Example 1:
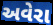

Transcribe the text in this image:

અવેરા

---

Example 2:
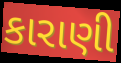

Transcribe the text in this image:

કારાણી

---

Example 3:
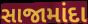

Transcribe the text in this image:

સાજામાંદા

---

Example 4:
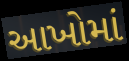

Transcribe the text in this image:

આખોમાં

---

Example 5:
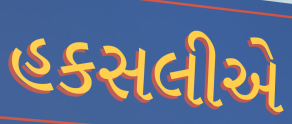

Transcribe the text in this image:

હકસલીએ